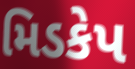
મિડકેપ